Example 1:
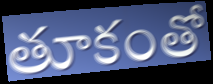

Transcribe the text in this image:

తూకంతో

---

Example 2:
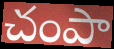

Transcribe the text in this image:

చంపా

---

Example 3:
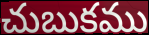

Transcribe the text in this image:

చుబుకము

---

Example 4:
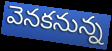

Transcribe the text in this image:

వెనకనున్న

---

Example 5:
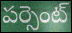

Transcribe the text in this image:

పర్సెంట్